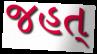
જહત્